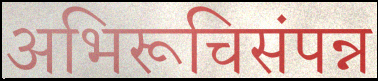
अभिरूचिसंपन्न